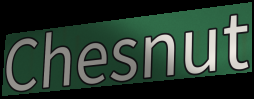
Chesnut